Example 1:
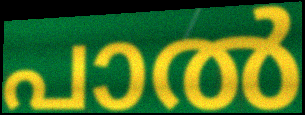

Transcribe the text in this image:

പാൽ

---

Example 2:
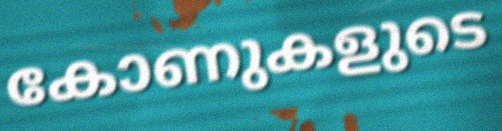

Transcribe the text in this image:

കോണുകളുടെ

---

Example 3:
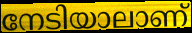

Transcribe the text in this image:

നേടിയാലാണ്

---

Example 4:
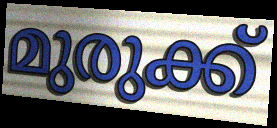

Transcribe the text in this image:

മുരുക്ക്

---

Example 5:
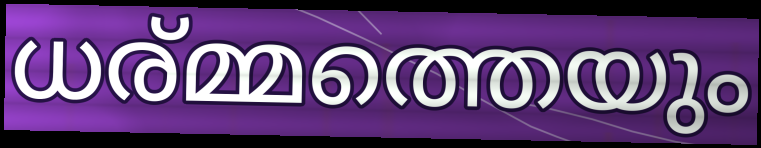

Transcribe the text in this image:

ധര്മ്മത്തെയും